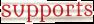
supports